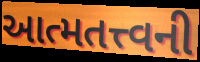
આત્મતત્ત્વની